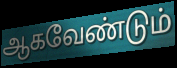
ஆகவேண்டும்